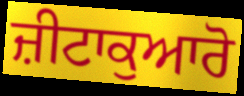
ਜ਼ੀਟਾਕੁਆਰੋ